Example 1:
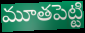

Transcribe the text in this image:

మూతపెట్టి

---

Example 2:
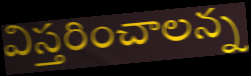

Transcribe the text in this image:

విస్తరించాలన్న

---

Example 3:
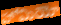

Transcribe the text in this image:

హోమియో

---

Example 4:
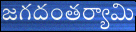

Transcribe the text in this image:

జగదంతర్యామి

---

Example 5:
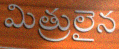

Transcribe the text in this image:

మిత్రులైన